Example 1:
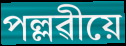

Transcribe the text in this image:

পল্লৱীয়ে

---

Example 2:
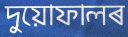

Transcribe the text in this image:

দুয়োফালৰ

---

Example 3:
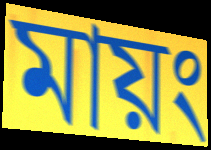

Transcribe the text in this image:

মায়ং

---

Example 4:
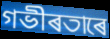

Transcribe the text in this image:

গভীৰতাৰে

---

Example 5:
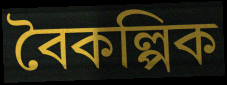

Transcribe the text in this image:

বৈকল্পিক